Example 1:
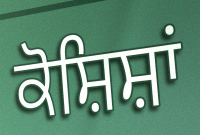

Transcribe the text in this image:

ਕੋਸ਼ਿਸ਼ਾਂ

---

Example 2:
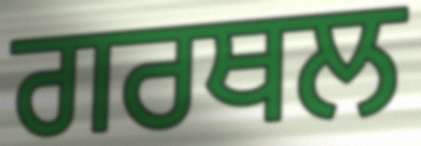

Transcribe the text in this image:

ਗਰਥਲ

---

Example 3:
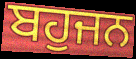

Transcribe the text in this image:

ਬਹੁਜਨ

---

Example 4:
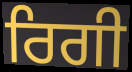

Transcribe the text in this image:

ਰਿਗੀ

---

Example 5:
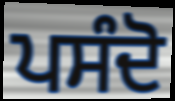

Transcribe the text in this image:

ਪਸੰਦੋ